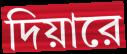
দিয়ারে